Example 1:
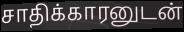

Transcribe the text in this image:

சாதிக்காரனுடன்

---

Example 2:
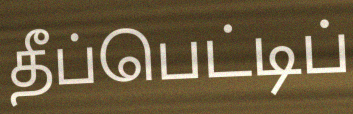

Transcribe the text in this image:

தீப்பெட்டிப்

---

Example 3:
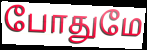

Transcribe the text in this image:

போதுமே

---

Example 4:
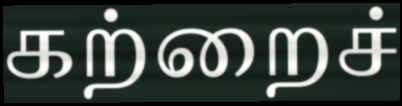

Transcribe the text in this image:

கற்றைச்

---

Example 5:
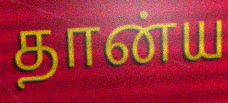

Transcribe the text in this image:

தான்ய